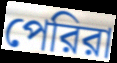
পেরিরা